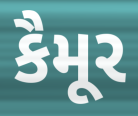
કૈમૂર